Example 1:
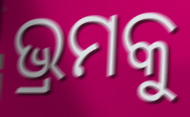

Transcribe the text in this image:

ଭ୍ରମକୁ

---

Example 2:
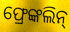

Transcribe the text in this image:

ଫ୍ରେଙ୍କଲିନ୍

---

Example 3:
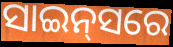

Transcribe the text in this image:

ସାଇନ୍‌ସରେ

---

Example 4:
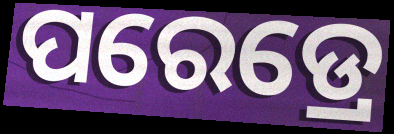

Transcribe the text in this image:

ପରେଡ୍ରେ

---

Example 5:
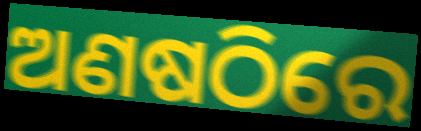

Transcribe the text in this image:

ଅଣଷଠିରେ